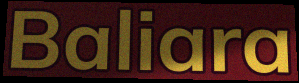
Baliara